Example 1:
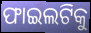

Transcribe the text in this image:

ଫାଇଲଟିକୁ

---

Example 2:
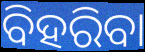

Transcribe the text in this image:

ବିହରିବା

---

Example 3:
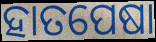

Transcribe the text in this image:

ହାତପେଷା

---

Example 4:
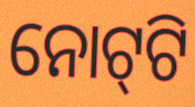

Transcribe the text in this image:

ନୋଟ୍‌ଟି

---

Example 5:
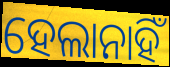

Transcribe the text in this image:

ହେଲାନାହିଁ